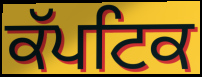
ਕੱਪਟਿਕ